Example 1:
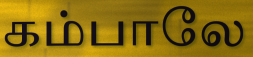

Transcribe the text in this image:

கம்பாலே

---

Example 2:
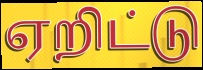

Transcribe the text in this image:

ஏறிட்டு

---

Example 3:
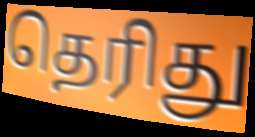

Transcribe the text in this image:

தெரிது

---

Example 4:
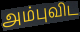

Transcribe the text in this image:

அம்புவிட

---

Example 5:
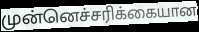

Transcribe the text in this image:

முன்னெச்சரிக்கையான